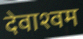
देवाश्वम